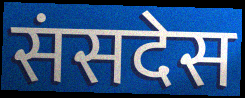
संसदेस